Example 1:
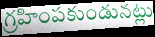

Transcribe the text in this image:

గ్రహింపకుండునట్లు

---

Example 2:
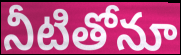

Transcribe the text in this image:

నీటితోనూ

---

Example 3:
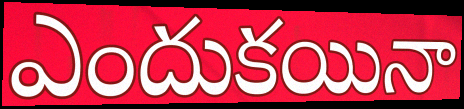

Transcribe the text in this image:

ఎందుకయినా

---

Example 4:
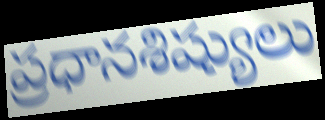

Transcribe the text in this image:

ప్రధానశిష్యులు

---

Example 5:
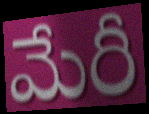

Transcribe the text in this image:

మేరీ